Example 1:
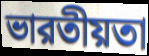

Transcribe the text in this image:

ভারতীয়তা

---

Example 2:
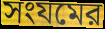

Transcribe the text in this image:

সংযমের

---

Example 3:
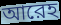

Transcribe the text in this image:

আরেহ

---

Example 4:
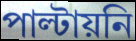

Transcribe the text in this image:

পাল্টায়নি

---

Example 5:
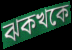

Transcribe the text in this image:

ঝকখকে